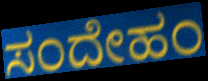
ಸಂದೇಹಂ